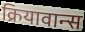
क्रियावान्स